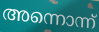
അന്നൊന്ന്